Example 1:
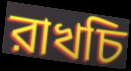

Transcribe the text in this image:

রাখচি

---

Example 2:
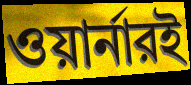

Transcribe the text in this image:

ওয়ার্নারই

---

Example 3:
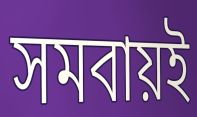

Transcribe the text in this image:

সমবায়ই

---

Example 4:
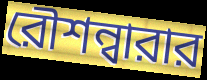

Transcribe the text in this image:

রৌশন্বারার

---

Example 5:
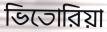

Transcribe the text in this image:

ভিতোরিয়া